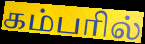
கம்பரில்